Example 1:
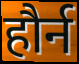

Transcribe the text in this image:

हौर्न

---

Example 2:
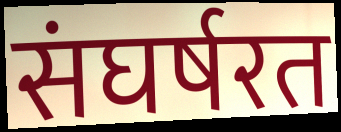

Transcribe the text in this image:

संघर्षरत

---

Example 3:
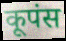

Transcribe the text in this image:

कूपंस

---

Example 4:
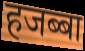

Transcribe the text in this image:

हजब्बा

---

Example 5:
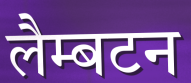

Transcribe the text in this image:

लैम्बटन